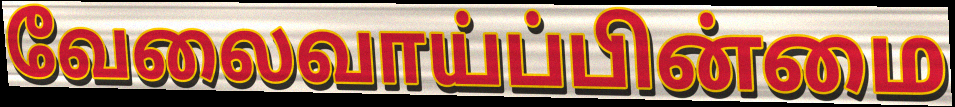
வேலைவாய்ப்பின்மை